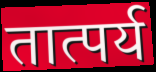
तात्पर्य